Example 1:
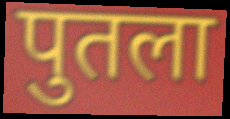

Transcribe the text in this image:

पुतला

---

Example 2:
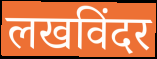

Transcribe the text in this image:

लखविंदर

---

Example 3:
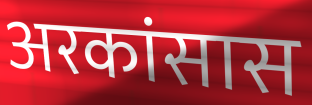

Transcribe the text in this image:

अरकांसास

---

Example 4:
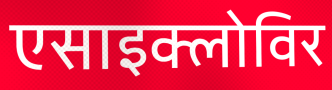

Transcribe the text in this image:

एसाइक्लोविर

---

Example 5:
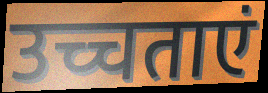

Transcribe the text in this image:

उच्चताएं